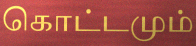
கொட்டமும்